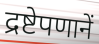
द्रष्टेपणानें